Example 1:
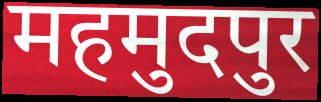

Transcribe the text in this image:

महमुदपुर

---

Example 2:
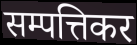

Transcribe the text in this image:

सम्पत्तिकर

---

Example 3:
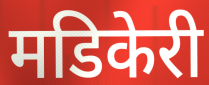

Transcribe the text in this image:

मडिकेरी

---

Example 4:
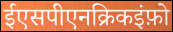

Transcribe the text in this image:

ईएसपीएनक्रिकइंफ़ो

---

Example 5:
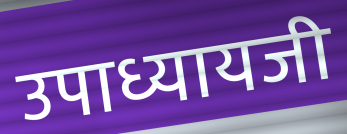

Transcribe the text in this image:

उपाध्यायजी